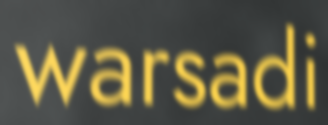
warsadi